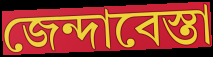
জেন্দাবেস্তা